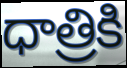
ధాత్రికి